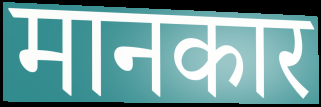
मानकार